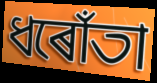
ধৰোঁতা